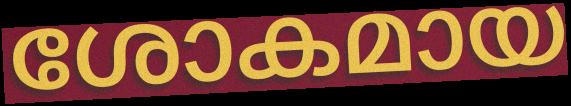
ശോകമായ